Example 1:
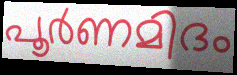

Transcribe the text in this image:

പൂർണമിദം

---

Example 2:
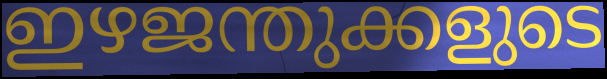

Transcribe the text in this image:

ഇഴജന്തുക്കളുടെ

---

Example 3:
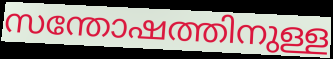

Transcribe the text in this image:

സന്തോഷത്തിനുള്ള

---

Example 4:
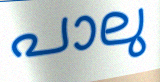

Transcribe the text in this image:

പാലു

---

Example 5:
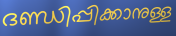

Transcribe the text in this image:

ദണ്ഡിപ്പിക്കാനുള്ള